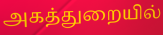
அகத்துறையில்